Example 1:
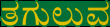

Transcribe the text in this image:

ತಗುಲುವ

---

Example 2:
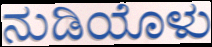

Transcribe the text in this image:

ನುಡಿಯೊಳು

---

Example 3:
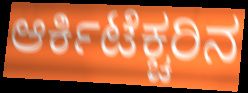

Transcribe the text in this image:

ಆರ್ಕಿಟೆಕ್ಚರಿನ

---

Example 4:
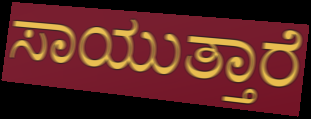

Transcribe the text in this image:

ಸಾಯುತ್ತಾರೆ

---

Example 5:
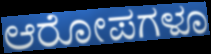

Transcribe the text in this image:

ಆರೋಪಗಳೂ